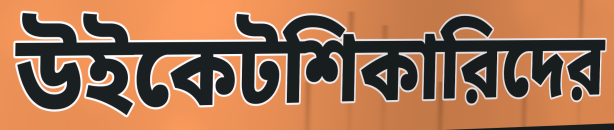
উইকেটশিকারিদের